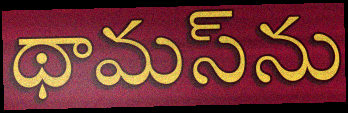
థామస్‌ను